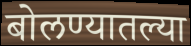
बोलण्यातल्या